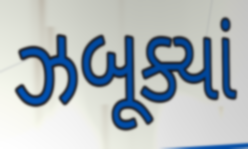
ઝબૂક્યાં